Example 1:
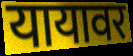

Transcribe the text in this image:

यायावर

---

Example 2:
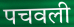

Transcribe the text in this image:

पचवली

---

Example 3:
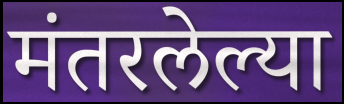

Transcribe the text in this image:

मंतरलेल्या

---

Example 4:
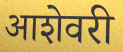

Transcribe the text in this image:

आशेवरी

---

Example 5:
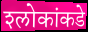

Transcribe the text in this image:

श्लोकांकडे